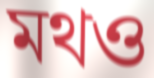
মথও